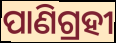
ପାଣିଗ୍ରହୀ